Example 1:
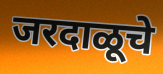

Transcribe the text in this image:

जरदाळूचे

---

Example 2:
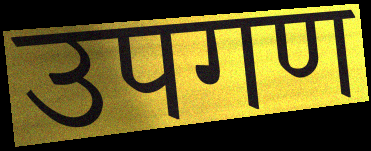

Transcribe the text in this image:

उपगण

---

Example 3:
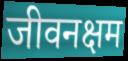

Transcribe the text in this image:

जीवनक्षम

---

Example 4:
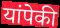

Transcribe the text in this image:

यांपेकी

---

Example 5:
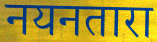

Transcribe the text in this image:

नयनतारा